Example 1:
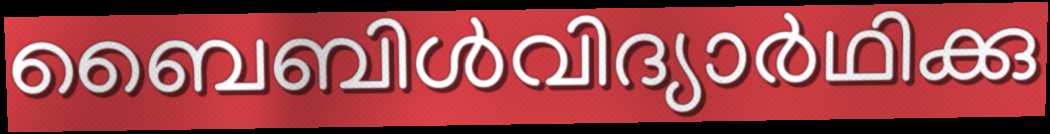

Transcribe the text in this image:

ബൈബിൾവിദ്യാർഥിക്കു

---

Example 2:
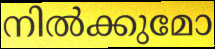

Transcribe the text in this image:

നിൽക്കുമോ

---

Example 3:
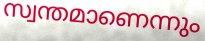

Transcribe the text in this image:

സ്വന്തമാണെന്നും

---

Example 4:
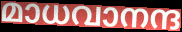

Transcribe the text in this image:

മാധവാനന്ദ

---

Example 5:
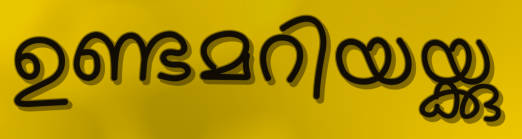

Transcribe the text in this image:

ഉണ്ടമറിയയ്ക്കു